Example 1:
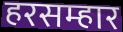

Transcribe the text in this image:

हरसम्हार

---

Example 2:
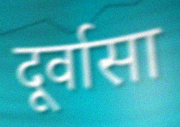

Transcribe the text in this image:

दूर्वासा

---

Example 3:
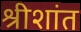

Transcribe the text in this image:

श्रीशांत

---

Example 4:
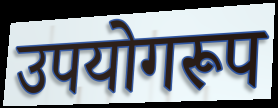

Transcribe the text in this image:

उपयोगरूप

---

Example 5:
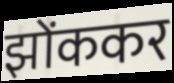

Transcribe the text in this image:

झोंककर